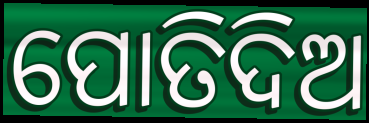
ପୋତିଦିଅ